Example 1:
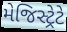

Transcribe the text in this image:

મેજિસ્ટ્રેટે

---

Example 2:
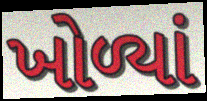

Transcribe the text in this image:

ખોળ્યાં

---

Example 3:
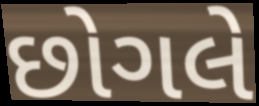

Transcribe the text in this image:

છોગલે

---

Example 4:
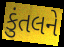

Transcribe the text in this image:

કુંતલને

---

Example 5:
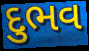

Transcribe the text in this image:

દુભવ